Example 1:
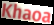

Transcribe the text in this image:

Khaoa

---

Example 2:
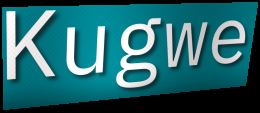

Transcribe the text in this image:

Kugwe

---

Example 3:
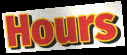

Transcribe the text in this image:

Hours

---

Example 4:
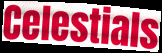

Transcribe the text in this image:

Celestials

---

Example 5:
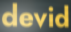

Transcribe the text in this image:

devid